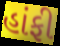
હાંફી